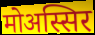
मोअस्सिर